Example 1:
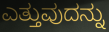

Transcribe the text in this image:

ಎತ್ತುವುದನ್ನು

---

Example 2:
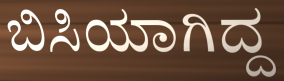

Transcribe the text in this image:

ಬಿಸಿಯಾಗಿದ್ದ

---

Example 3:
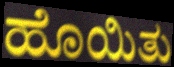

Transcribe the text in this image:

ಹೊಯಿತು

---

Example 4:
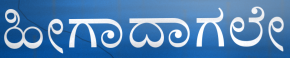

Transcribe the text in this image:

ಹೀಗಾದಾಗಲೇ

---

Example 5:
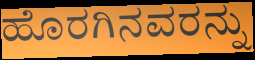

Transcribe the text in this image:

ಹೊರಗಿನವರನ್ನು